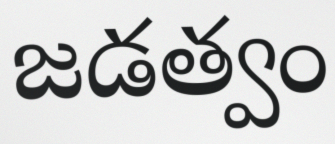
జడత్వం